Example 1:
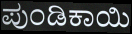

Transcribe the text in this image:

ಪುಂಡಿಕಾಯಿ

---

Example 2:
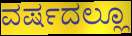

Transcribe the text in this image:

ವರ್ಷದಲ್ಲೂ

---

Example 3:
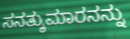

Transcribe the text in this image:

ಸನತ್ಕುಮಾರನನ್ನು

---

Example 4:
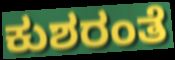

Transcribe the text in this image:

ಕುಶರಂತೆ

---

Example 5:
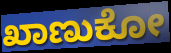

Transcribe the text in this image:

ಖಾಣುಕೋ